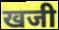
खजी